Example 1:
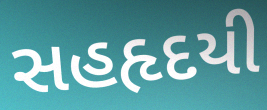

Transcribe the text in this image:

સહહૃદયી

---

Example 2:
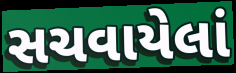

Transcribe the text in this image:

સચવાયેલાં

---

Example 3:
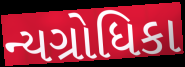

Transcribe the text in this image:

ન્યગ્રોધિકા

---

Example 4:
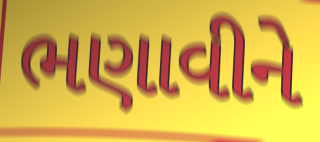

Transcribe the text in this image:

ભણાવીને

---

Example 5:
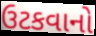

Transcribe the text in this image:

ઉટકવાનો